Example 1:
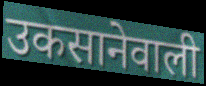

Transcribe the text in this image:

उकसानेवाली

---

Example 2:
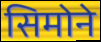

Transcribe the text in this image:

सिमोने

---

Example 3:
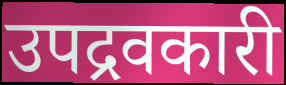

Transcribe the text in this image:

उपद्रवकारी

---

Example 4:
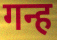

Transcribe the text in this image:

गन्ह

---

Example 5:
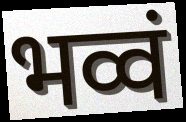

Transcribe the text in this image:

भव्वं